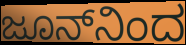
ಜೂನ್‌ನಿಂದ